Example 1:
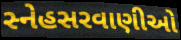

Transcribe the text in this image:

સ્નેહસરવાણીઓ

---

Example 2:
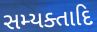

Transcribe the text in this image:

સમ્યક્તાદિ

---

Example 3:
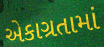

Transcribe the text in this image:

એકાગ્રતામાં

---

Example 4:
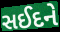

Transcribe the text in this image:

સઈદને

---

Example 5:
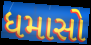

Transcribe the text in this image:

ધમાસો